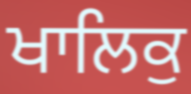
ਖਾਲਿਕੁ